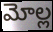
మోల్ల